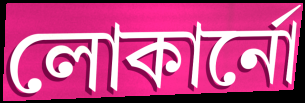
লোকার্নো